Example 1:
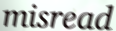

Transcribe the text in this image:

misread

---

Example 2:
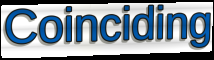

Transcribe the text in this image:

Coinciding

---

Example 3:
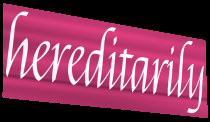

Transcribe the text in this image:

hereditarily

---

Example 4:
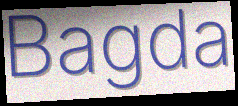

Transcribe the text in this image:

Bagda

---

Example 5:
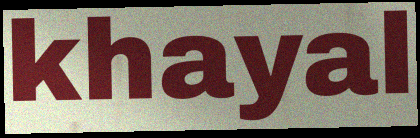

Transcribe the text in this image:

khayal